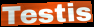
Testis